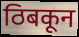
ठिबकून